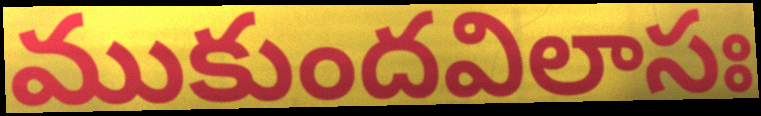
ముకుందవిలాసః